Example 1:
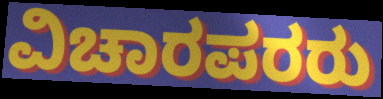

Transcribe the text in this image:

ವಿಚಾರಪರರು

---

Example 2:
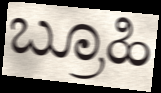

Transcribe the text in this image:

ಬ್ರೂಹಿ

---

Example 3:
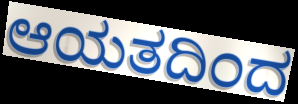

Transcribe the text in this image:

ಆಯತದಿಂದ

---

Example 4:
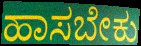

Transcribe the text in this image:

ಹಾಸಬೇಕು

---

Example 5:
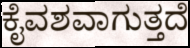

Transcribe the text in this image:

ಕೈವಶವಾಗುತ್ತದೆ